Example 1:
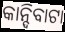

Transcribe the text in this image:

କାନ୍ଦିବାଟା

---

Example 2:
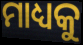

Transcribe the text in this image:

ମାଧ୍ୟକୁ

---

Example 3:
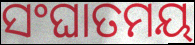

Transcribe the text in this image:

ସଂଘାତମୟ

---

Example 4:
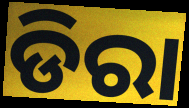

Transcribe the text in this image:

ଡିରା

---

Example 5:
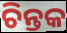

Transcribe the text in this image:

ଚିନ୍ତକ